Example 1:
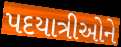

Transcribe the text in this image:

પદયાત્રીઓને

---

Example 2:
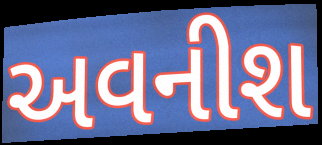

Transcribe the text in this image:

અવનીશ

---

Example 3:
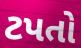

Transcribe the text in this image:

ટપતો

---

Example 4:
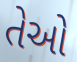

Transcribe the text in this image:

તેઓે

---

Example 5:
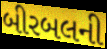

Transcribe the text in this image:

બીરબલની